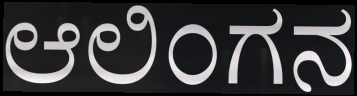
ಆಲಿಂಗನ